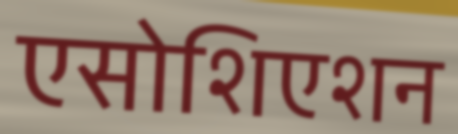
एसोशिएशन